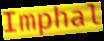
Imphal